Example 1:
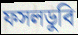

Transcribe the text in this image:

ফসলডুবি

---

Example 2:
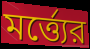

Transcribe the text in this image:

মর্ত্ত্যের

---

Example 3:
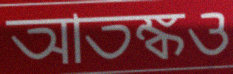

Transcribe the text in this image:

আতঙ্কও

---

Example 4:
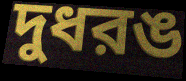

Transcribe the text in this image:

দুধরঙ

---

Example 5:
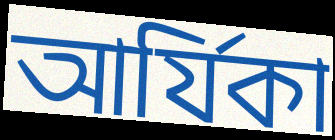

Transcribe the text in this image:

আর্যিকা